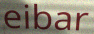
eibar